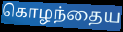
கொழந்தைய